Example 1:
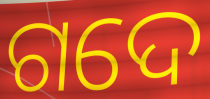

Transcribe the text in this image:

ଗଦେ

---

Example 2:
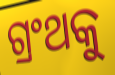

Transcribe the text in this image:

ଗ୍ରଂଥକୁ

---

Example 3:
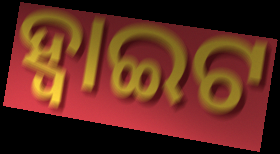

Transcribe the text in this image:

ହ୍ୱାଇଟ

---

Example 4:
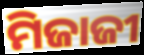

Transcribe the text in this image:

ମିଜାଜୀ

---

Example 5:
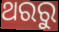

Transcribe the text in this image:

ଥରରୁ